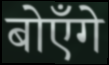
बोएँगे